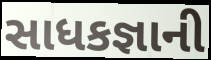
સાધકજ્ઞાની